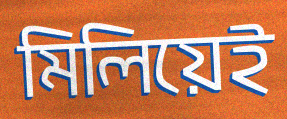
মিলিয়েই